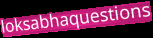
loksabhaquestions